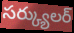
సర్క్యులర్